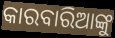
କାରବାରିଆଙ୍କୁ